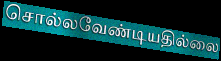
சொல்லவேண்டியதில்லை